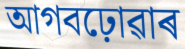
আগবঢ়োৱাৰ